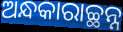
ଅନ୍ଧକାରାଚ୍ଛନ୍ନ